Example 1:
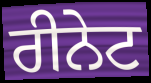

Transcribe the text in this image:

ਰੀਨੇਟ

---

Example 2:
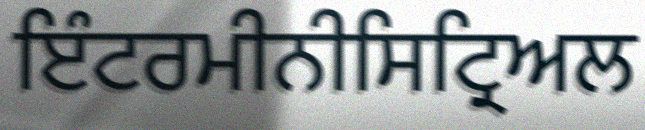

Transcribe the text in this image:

ਇੰਟਰਮੀਨੀਸਿਟ੍ਰਿਅਲ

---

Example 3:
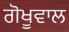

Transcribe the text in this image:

ਗੋਖੂਵਾਲ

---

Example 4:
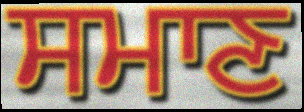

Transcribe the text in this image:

ਸਮਾਣ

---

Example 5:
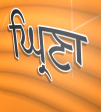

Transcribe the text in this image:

ਘ੍ਰਿਣਾ